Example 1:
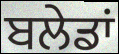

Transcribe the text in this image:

ਬਲੇਡਾਂ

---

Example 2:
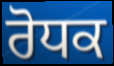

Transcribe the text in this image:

ਰੋਧਕ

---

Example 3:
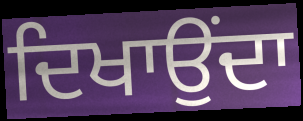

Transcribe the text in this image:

ਦਿਖਾਉਂਦਾ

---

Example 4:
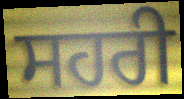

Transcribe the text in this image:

ਸਹਰੀ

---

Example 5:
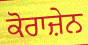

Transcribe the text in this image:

ਕੋਰਾਜ਼ੇਨ